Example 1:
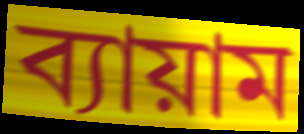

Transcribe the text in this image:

ব্যায়াম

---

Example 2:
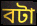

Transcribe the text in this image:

বটা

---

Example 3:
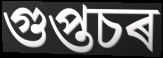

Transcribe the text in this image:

গুপ্তচৰ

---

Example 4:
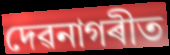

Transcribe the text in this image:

দেৱনাগৰীত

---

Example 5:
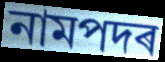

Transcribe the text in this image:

নামপদৰ